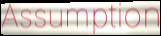
Assumption